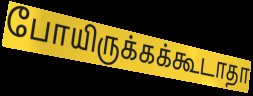
போயிருக்கக்கூடாதா